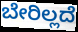
ಬೇರಿಲ್ಲದೆ